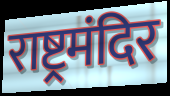
राष्ट्रमंदिर